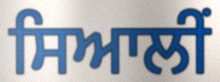
ਸਿਆਲੀਂ